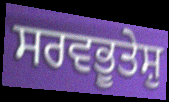
ਸਰਵਭੂਤੇਸ਼ੁ